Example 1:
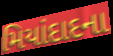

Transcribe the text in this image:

મિયાંદાદના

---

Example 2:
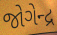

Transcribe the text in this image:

જોગેન્દ્ર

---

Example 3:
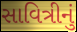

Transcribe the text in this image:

સાવિત્રીનું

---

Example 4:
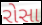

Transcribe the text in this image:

રોસા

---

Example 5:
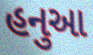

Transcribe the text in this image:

હનુઆ